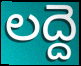
లద్దె